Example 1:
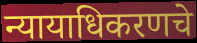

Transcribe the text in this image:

न्यायाधिकरणचे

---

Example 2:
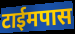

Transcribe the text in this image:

टाईमपास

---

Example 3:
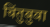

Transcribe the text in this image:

चिंतुबुवा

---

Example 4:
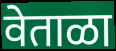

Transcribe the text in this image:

वेताळा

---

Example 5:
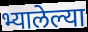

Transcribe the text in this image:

भ्यालेल्या